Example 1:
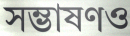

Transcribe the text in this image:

সম্ভাষণও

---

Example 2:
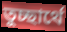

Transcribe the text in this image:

তুচ্ছার্থে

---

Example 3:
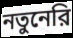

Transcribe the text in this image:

নতুনেরি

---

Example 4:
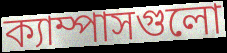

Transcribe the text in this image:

ক্যাম্পাসগুলো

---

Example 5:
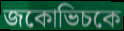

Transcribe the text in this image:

জকোভিচকে